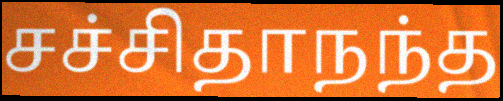
சச்சிதாநந்த